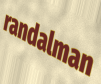
randalman